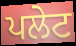
ਪਲੇਟ